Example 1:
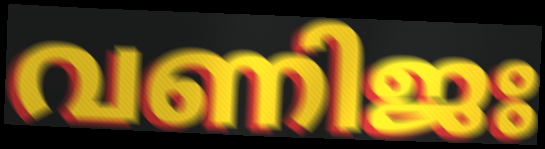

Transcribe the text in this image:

വണിജഃ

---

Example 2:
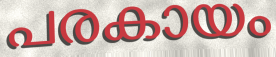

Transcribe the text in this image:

പരകായം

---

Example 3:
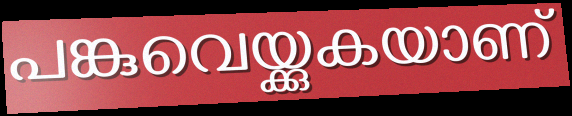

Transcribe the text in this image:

പങ്കുവെയ്ക്കുകയാണ്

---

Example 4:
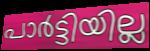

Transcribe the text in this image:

പാർട്ടിയില്ല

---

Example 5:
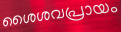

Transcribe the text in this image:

ശൈശവപ്രായം